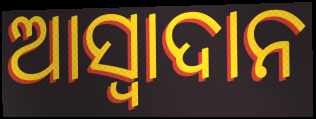
ଆସ୍ୱାଦାନ